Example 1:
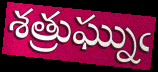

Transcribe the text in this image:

శత్రుఘ్నుఁ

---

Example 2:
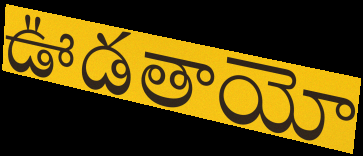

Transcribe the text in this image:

ఊడతాయో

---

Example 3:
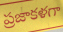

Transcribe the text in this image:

ప్రజాకళగా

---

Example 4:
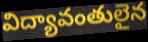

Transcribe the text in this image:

విద్యావంతులైన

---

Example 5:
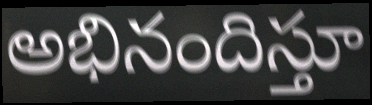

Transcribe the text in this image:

అభినందిస్తూ